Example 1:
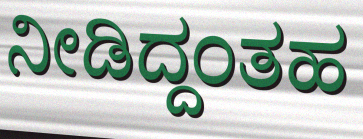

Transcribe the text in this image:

ನೀಡಿದ್ದಂತಹ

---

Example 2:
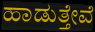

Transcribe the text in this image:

ಹಾಡುತ್ತೇವೆ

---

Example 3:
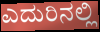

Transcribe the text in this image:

ಎದುರಿನಲ್ಲಿ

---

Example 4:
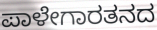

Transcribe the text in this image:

ಪಾಳೇಗಾರತನದ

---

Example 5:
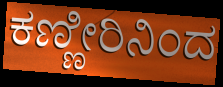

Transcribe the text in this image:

ಕಣ್ಣೀರಿನಿಂದ